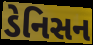
ડેનિસન